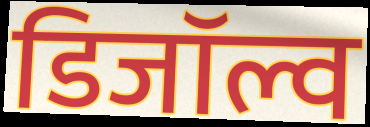
डिजॉल्व